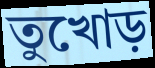
তুখোড়